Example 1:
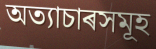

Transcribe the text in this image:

অত্যাচাৰসমূহ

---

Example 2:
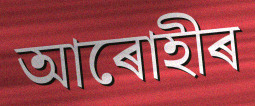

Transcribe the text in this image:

আৰোহীৰ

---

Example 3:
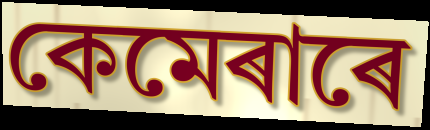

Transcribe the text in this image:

কেমেৰাৰে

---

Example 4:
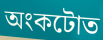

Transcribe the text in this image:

অংকটোত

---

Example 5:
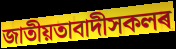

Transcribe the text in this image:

জাতীয়তাবাদীসকলৰ